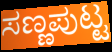
ಸಣ್ಣಪುಟ್ಟ